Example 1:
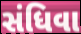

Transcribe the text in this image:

સંધિવા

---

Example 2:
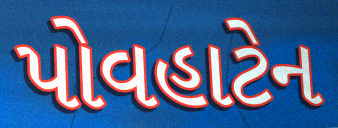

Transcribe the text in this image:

પોવહાટેન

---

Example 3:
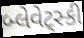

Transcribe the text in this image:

બ્લેવેટ્સ્કી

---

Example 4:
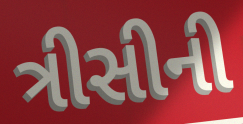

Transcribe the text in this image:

ત્રીસીની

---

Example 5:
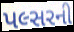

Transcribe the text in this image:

પલ્સરની